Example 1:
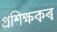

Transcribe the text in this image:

প্ৰশিক্ষকৰ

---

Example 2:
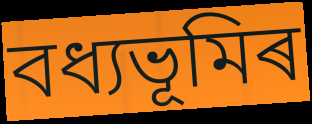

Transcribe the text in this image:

বধ্যভূমিৰ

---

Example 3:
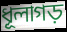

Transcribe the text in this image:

ধূলাগড়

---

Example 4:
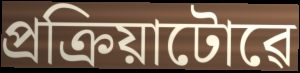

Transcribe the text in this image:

প্ৰক্ৰিয়াটোৱে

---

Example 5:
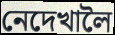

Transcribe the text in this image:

নেদেখালৈ